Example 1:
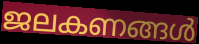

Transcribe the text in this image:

ജലകണങ്ങൾ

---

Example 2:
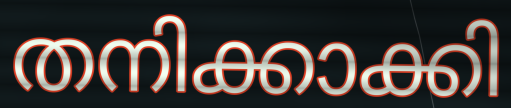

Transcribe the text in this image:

തനിക്കാക്കി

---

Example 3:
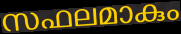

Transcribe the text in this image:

സഫലമാകും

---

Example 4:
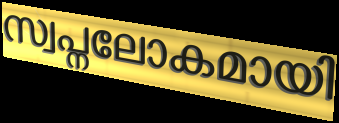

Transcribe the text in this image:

സ്വപ്നലോകമായി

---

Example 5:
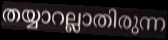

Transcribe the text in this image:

തയ്യാറല്ലാതിരുന്ന